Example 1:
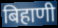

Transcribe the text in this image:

बिहाणी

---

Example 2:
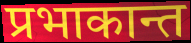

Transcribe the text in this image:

प्रभाकान्त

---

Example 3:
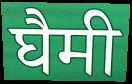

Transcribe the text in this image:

घैमी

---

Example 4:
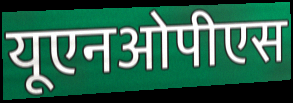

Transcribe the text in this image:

यूएनओपीएस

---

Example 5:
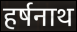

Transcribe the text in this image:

हर्षनाथ